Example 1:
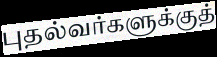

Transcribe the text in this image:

புதல்வர்களுக்குத்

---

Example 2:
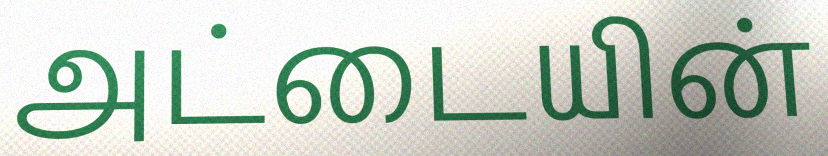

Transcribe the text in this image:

அட்டையின்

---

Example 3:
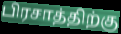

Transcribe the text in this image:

பிரசாத்திற்கு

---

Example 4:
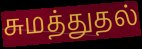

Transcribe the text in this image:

சுமத்துதல்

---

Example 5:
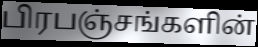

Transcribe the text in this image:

பிரபஞ்சங்களின்